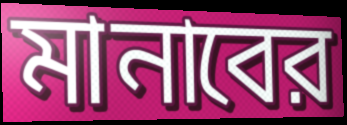
মানাবের